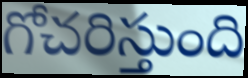
గోచరిస్తుంది